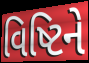
વિષ્ટિને